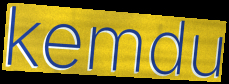
kemdu